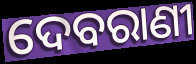
ଦେବରାଣୀ